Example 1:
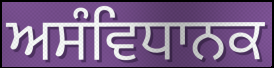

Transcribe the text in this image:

ਅਸੰਵਿਧਾਨਕ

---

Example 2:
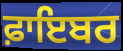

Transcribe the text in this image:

ਫ਼ਾਇਬਰ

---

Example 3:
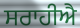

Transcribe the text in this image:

ਸਰਾਹੀਐ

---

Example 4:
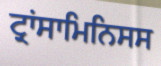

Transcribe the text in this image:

ਟ੍ਰਾਂਸਾਮਿਨਿਸਸ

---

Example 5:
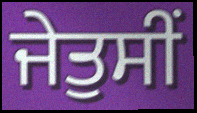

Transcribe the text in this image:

ਜੇਤੁਸੀਂ